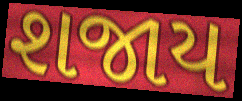
શજાય